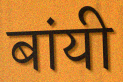
बांयी